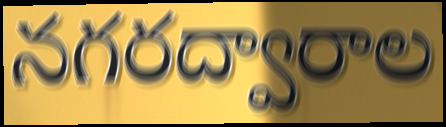
నగరద్వారాల